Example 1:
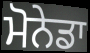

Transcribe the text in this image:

ਮੋਨੇਡਾ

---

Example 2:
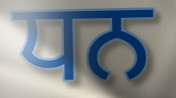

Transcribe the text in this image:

ਧਨ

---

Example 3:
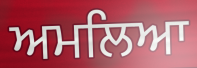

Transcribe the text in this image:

ਅਮਲਿਆ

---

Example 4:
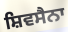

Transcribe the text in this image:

ਸ਼ਿਵਸੈਨਾ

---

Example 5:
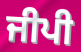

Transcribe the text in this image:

ਜੀਪੀ